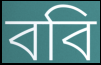
ববি